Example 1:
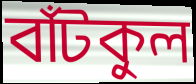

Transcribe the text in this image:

বাঁটকুল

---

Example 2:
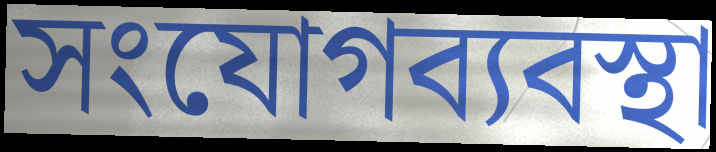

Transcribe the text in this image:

সংযোগব্যবস্থা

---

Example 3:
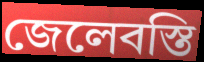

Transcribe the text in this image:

জেলেবস্তি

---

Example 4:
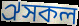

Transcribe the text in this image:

ঐসকল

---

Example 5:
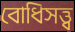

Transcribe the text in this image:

বোধিসত্ত্ব